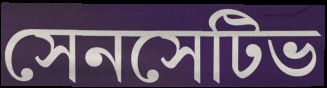
সেনসেটিভ